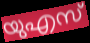
യുഎസ്